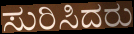
ಸುರಿಸಿದರು